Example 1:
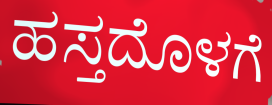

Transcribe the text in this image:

ಹಸ್ತದೊಳಗೆ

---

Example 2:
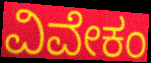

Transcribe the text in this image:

ವಿವೇಕಂ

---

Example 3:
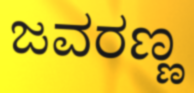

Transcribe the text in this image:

ಜವರಣ್ಣ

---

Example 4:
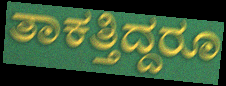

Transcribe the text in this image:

ತಾಕತ್ತಿದ್ದರೂ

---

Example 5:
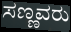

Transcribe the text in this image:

ಸಣ್ಣವರು